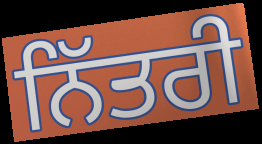
ਨਿੱਤਰੀ